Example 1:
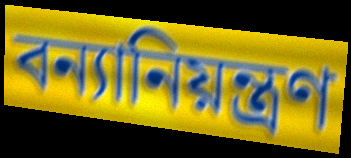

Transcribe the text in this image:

বন্যানিয়ন্ত্রণ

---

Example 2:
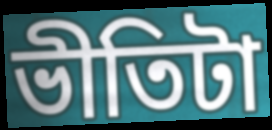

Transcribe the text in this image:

ভীতিটা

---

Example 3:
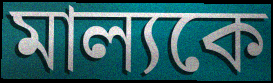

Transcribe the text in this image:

মাল্যকে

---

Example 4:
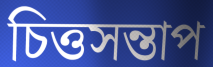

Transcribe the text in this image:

চিত্তসন্তাপ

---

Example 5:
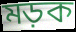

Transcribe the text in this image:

মড়ক